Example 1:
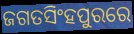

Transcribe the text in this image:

ଜଗତସିଂହପୁରରେ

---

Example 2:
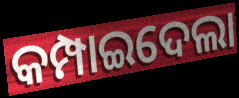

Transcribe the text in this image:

କମ୍ପାଇଦେଲା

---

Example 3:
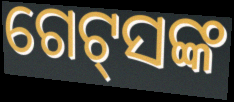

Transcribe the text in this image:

ଗେଟ୍‌ସଙ୍କ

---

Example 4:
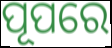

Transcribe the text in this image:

ପୂପରେ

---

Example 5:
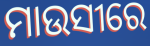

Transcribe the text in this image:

ମାଉସୀରେ